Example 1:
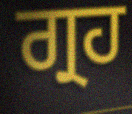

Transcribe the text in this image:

ਗ੍ਰਹ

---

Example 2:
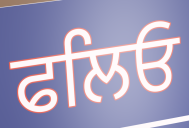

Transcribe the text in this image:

ਫਲਿਓ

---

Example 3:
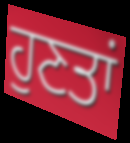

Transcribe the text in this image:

ਹੁਣਤਾਂ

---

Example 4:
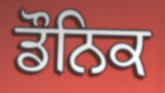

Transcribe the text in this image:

ਡੌਨਿਕ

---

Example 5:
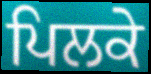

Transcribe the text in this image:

ਪਿਲਕੇ